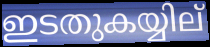
ഇടതുകയ്യില്